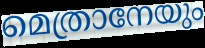
മെത്രാനേയും